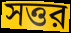
সত্তর